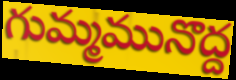
గుమ్మమునొద్ద